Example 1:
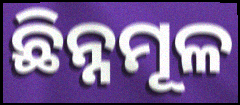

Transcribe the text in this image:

ଛିନ୍ନମୂଳ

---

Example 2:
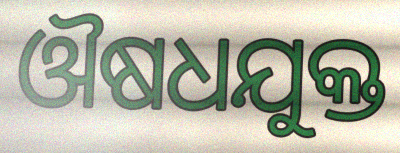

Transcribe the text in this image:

ଔଷଧଯୁକ୍ତ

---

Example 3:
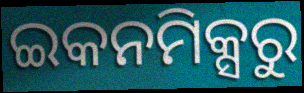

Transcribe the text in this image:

ଇକନମିକ୍ସରୁ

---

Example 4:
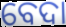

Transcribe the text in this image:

ବେଦା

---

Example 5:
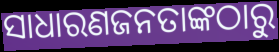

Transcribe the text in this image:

ସାଧାରଣଜନତାଙ୍କଠାରୁ